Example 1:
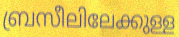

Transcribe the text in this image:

ബ്രസീലിലേക്കുള്ള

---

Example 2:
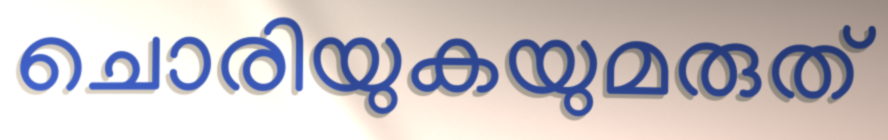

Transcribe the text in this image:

ചൊരിയുകയുമരുത്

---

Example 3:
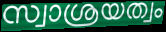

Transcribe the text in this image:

സ്വാശ്രയത്വം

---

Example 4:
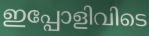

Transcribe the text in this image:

ഇപ്പോളിവിടെ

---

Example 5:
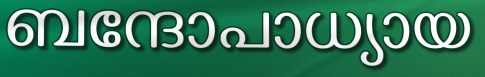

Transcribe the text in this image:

ബന്ദോപാധ്യായ